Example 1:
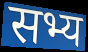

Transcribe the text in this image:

सभ्य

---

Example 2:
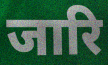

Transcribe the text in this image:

जारि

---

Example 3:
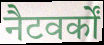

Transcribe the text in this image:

नैटवर्कों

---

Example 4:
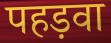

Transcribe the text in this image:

पहड़वा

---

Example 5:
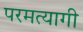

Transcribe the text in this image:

परमत्यागी